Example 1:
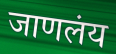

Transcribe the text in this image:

जाणलंय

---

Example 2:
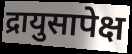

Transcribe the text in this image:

द्रायुसापेक्ष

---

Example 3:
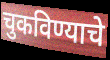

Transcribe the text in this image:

चुकविण्याचे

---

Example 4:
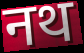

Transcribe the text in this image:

नथ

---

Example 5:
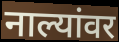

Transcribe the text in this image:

नाल्यांवर